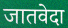
जातवेदा